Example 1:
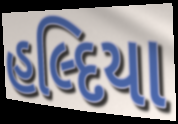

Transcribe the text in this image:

હલ્દિયા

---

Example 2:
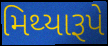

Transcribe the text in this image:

મિથ્યારૂપે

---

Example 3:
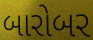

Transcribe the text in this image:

બારોબર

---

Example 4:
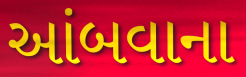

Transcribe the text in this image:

આંબવાના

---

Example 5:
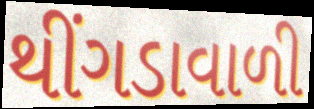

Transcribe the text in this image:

થીંગડાવાળી